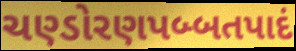
ચણ્ડોરણપબ્બતપાદં